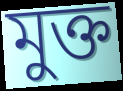
মুক্ত